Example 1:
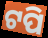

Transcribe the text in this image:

ଟପି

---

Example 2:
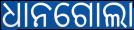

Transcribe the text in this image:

ଧାନଗୋଲା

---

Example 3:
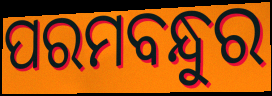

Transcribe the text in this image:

ପରମବନ୍ଧୁର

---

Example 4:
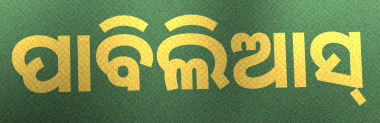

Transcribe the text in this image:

ପାବିଲିଆସ୍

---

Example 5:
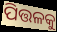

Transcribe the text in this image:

ପିତ୍ତଳକୁ